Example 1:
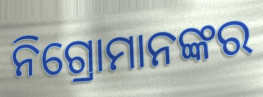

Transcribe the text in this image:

ନିଗ୍ରୋମାନଙ୍କର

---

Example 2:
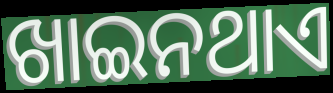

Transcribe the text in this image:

ଖାଇନଥାଏ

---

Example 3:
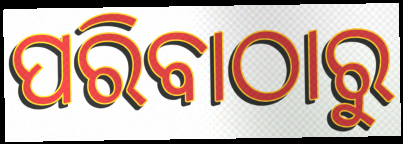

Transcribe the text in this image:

ପରିବାଠାରୁ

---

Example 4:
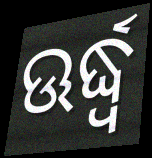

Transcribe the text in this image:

ଊର୍ଦ୍ଧ୍ବ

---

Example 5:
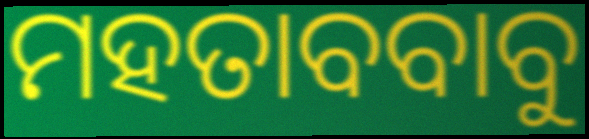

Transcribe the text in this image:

ମହତାବବାବୁ